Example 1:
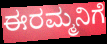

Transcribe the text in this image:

ಈರಮ್ಮನಿಗೆ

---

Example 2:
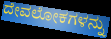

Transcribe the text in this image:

ದೇವಲೋಕಗಳನ್ನು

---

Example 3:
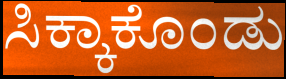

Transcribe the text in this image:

ಸಿಕ್ಕಾಕೊಂಡು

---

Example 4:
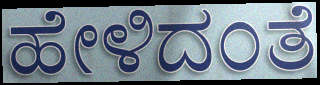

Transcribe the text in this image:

ಹೇಳಿದಂತೆ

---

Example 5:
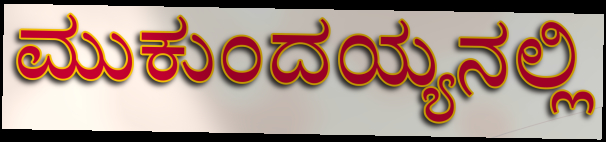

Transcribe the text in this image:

ಮುಕುಂದಯ್ಯನಲ್ಲಿ